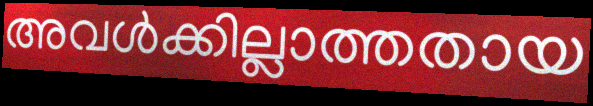
അവൾക്കില്ലാത്തതായ